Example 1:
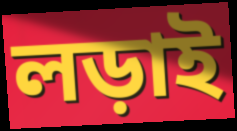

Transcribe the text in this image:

লড়াই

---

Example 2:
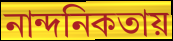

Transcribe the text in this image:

নান্দনিকতায়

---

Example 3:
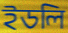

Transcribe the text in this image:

ইডলি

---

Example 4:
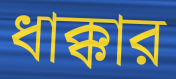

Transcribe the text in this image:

ধাক্কার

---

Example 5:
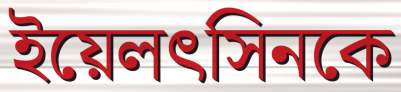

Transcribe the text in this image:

ইয়েলৎসিনকে